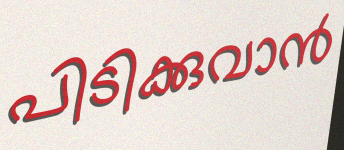
പിടിക്കുവാൻ